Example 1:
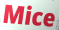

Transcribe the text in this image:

Mice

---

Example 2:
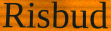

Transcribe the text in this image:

Risbud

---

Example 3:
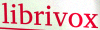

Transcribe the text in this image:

librivox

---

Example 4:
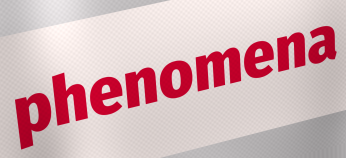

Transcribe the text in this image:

phenomena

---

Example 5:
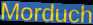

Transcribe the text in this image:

Morduch